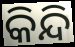
କିନ୍ଦି